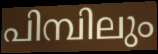
പിമ്പിലും